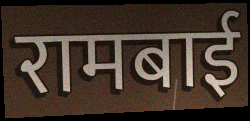
रामबाई